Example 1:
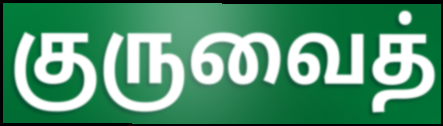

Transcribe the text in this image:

குருவைத்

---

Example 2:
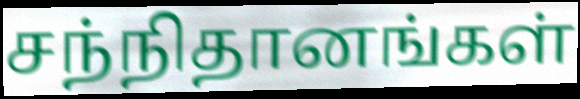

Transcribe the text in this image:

சந்நிதானங்கள்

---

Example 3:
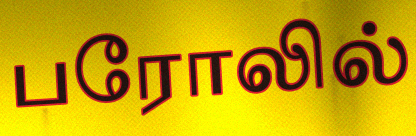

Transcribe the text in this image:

பரோலில்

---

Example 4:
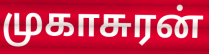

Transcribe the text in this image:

முகாசுரன்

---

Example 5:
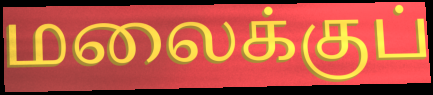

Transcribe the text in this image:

மலைக்குப்